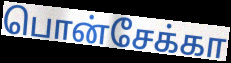
பொன்சேக்கா